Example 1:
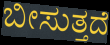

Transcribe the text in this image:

ಬೀಸುತ್ತದೆ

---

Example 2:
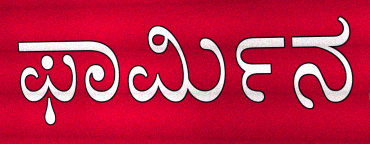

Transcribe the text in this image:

ಫಾರ್ಮಿನ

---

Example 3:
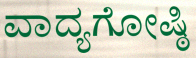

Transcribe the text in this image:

ವಾದ್ಯಗೋಷ್ಠಿ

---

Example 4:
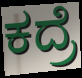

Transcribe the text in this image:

ಕದ್ರೆ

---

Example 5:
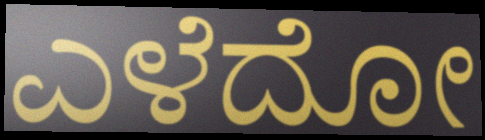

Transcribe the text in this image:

ಎಳೆದೋ